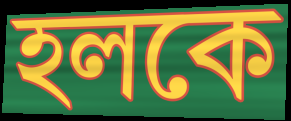
হলকে